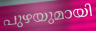
പുഴയുമായി